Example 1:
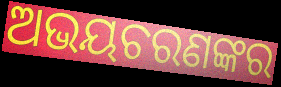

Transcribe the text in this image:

ଅଭୟଚରଣଙ୍କର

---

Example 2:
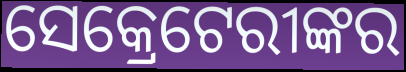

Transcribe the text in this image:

ସେକ୍ରେଟେରୀଙ୍କର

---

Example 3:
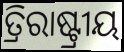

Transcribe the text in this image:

ତ୍ରିରାଷ୍ଟ୍ରୀୟ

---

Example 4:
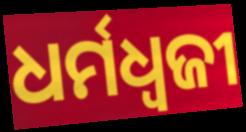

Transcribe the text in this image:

ଧର୍ମଧ୍ୱଜୀ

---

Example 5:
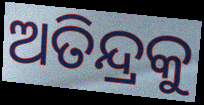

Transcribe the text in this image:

ଅତିନ୍ଦ୍ରକୁ